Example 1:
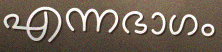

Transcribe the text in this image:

എന്നഭാഗം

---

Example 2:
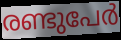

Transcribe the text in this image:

രണ്ടുപേർ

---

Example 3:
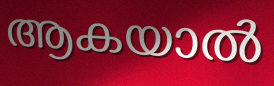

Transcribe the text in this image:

ആകയാൽ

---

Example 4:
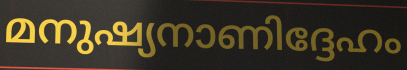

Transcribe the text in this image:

മനുഷ്യനാണിദ്ദേഹം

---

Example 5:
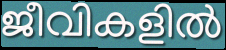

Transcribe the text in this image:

ജീവികളിൽ